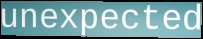
unexpected